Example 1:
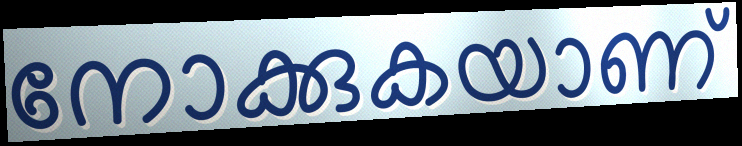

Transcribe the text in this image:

നോക്കുകയാണ്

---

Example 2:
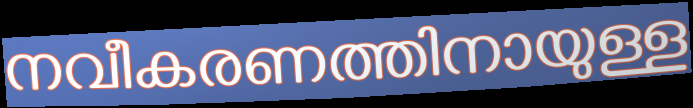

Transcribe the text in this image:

നവീകരണത്തിനായുള്ള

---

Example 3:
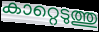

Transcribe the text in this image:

കാറ്റെടുത്തു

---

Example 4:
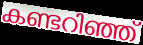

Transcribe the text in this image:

കണ്ടറിഞ്ഞ്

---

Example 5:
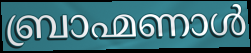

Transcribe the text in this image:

ബ്രാഹ്മണാൾ